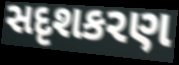
સદૃશકરણ